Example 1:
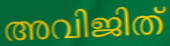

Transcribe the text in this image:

അവിജിത്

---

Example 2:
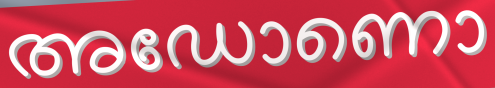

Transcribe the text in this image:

അഡോണൊ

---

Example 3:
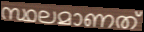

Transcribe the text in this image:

സ്ഥലമാണത്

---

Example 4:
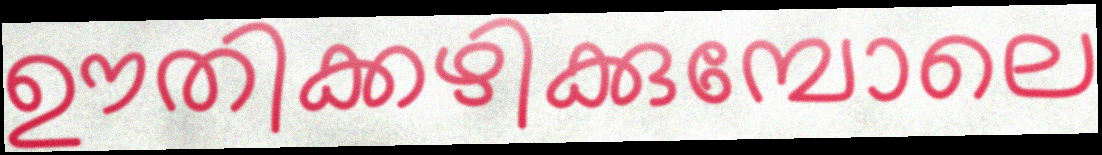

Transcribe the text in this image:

ഊതിക്കഴിക്കുമ്പോലെ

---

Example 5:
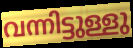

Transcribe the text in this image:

വന്നിട്ടുള്ളു